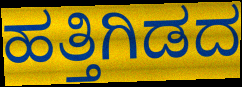
ಹತ್ತಿಗಿಡದ